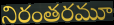
నిరంతరమూ